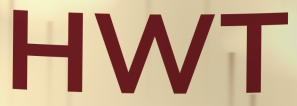
HWT